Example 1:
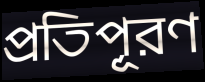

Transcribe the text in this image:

প্রতিপূরণ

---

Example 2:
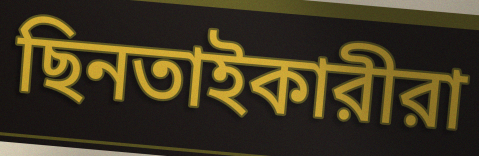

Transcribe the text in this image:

ছিনতাইকারীরা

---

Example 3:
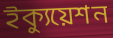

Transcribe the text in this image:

ইক্যুয়েশন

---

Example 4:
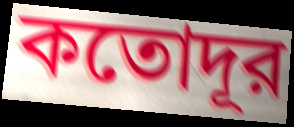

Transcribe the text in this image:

কতোদূর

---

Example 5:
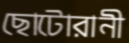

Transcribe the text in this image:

ছোটোরানী